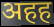
अहह